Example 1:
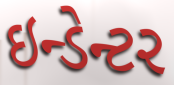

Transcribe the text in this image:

ઇન્ડેન્ટર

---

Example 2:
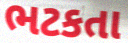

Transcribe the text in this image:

ભટકતા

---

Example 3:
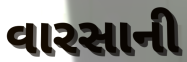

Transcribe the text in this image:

વારસાની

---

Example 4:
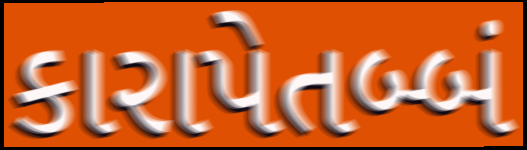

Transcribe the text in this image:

કારાપેતબ્બં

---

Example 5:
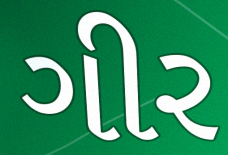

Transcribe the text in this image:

ગીર